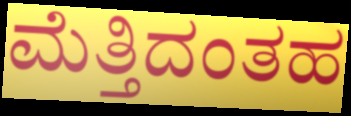
ಮೆತ್ತಿದಂತಹ